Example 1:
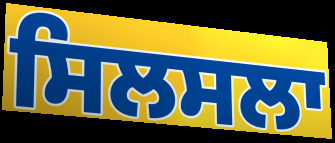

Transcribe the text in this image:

ਸਿਲਸਲਾ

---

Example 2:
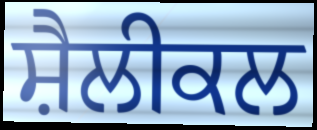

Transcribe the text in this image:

ਸ਼ੈਲੀਕਲ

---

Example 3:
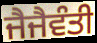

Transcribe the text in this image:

ਜੈਜੈਵੰਤੀ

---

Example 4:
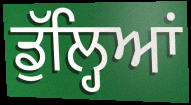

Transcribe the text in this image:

ਡੁੱਲ੍ਹਿਆਂ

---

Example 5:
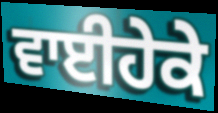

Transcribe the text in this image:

ਵਾਈਹੇਕੇ